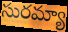
సురమ్యా